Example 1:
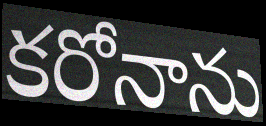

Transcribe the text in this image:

కరోనాను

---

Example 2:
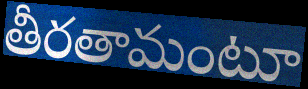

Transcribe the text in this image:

తీరతామంటూ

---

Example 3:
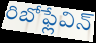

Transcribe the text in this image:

రిబోఫ్లేవిన్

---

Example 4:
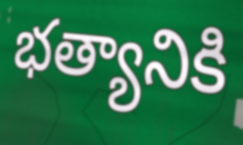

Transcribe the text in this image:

భత్యానికి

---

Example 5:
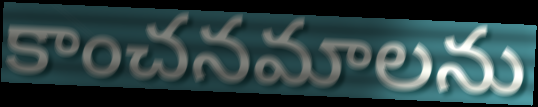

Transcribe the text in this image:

కాంచనమాలను